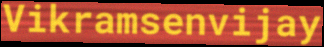
Vikramsenvijay